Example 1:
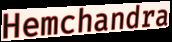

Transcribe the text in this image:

Hemchandra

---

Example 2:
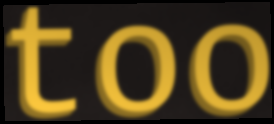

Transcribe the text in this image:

too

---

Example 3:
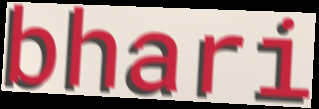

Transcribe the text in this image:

bhari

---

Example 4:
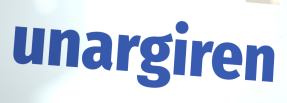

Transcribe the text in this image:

unargiren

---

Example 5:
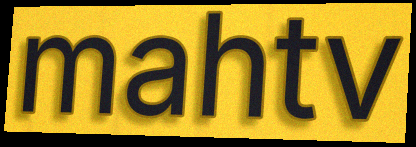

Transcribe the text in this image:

mahtv